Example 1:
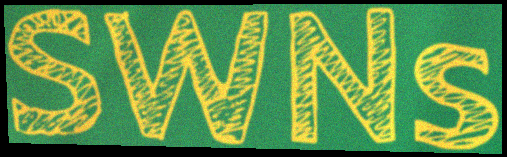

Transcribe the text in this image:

SWNs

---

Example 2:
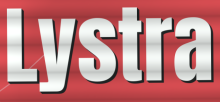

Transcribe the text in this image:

Lystra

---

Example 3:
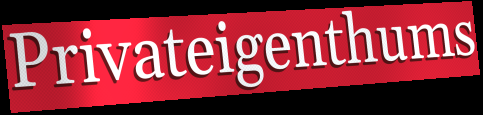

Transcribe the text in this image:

Privateigenthums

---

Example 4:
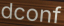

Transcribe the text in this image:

dconf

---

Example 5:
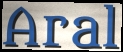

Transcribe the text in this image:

Aral